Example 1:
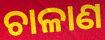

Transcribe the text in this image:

ଚାଳାଣ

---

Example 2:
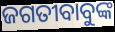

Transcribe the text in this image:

ଜଗତୀବାବୁଙ୍କ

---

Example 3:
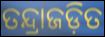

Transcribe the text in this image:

ତନ୍ଦ୍ରାଜଡ଼ିତ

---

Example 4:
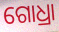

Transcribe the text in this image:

ଗୋଧ୍ରା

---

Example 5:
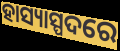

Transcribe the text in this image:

ହାସ୍ୟାସ୍ପଦରେ